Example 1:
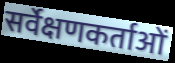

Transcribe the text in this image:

सर्वेक्षणकर्ताओं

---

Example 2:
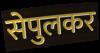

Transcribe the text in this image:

सेपुलकर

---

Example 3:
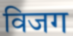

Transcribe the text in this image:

विजग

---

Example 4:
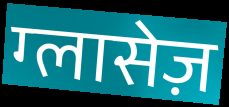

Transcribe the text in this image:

ग्लासेज़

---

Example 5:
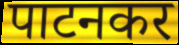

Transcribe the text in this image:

पाटनकर